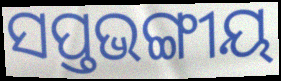
ସପ୍ତଭଙ୍ଗୀୟ